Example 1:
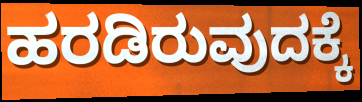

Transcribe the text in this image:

ಹರಡಿರುವುದಕ್ಕೆ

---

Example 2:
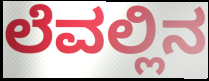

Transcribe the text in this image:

ಲೆವಲ್ಲಿನ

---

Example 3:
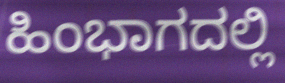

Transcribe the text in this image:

ಹಿಂಭಾಗದಲ್ಲಿ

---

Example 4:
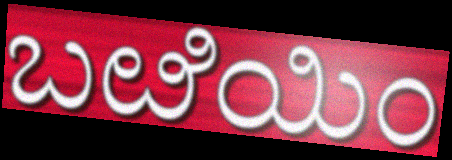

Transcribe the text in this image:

ಬೞಿಯಿಂ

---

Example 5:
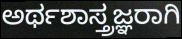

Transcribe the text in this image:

ಅರ್ಥಶಾಸ್ತ್ರಜ್ಞರಾಗಿ